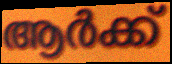
ആർക്ക്